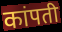
कांपती